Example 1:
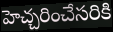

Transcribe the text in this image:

హెచ్చరించేసరికి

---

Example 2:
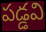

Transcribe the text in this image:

పడ్డవి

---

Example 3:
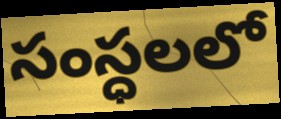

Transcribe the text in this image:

సంస్ధలలో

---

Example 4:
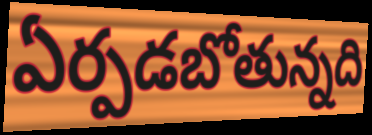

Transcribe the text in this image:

ఏర్పడబోతున్నది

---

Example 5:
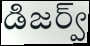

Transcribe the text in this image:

డిజర్వ్